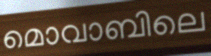
മൊവാബിലെ